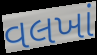
વલખાં